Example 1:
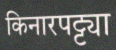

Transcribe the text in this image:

किनारपट्ट्या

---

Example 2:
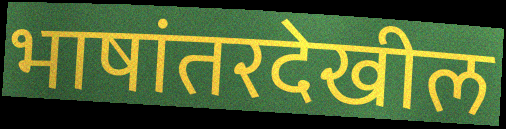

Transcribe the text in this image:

भाषांतरदेखील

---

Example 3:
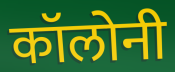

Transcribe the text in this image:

कॉलोनी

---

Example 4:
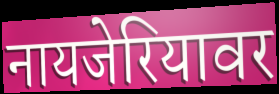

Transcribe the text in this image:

नायजेरियावर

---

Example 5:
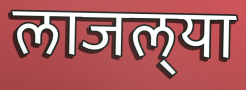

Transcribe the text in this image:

लाजल्या